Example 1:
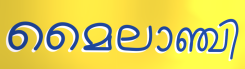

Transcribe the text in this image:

മൈലാഞ്ചി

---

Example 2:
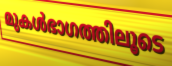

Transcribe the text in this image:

മുകൾഭാഗത്തിലൂടെ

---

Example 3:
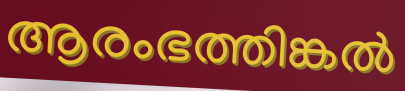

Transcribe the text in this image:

ആരംഭത്തിങ്കൽ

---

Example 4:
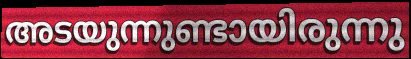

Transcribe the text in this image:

അടയുന്നുണ്ടായിരുന്നു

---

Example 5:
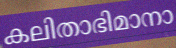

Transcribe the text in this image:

കലിതാഭിമാനാ